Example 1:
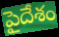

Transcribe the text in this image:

పైదేశం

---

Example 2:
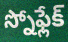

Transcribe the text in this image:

స్నోఫ్లేక్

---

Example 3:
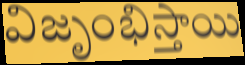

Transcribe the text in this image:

విజృంభిస్తాయి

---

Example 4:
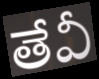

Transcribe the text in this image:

తేవీ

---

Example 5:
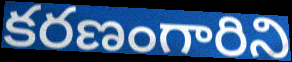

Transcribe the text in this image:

కరణంగారిని